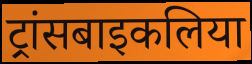
ट्रांसबाइकलिया